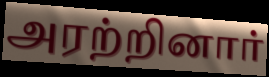
அரற்றினார்